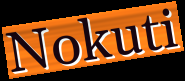
Nokuti